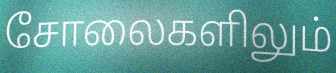
சோலைகளிலும்